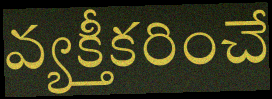
వ్యక్తీకరించే